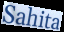
Sahita